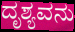
ದೃಶ್ಯವನು